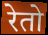
रेतो